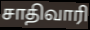
சாதிவாரி